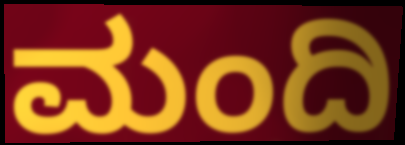
ಮಂದಿ